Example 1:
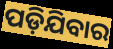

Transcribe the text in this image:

ପଡ଼ିଯିବାର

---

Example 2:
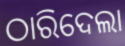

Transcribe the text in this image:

ଠାରିଦେଲା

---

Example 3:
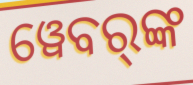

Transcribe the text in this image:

ୱେବର୍‌ଙ୍କ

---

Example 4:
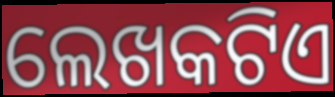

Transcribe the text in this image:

ଲେଖକଟିଏ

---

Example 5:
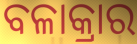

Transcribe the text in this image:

ବଳାକ୍ରାର